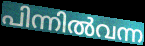
പിന്നിൽവന്ന